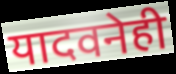
यादवनेही